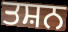
ਤਸ਼ਨ